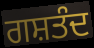
ਗਸ਼ਤੰਦ